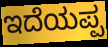
ಇದೆಯಪ್ಪ